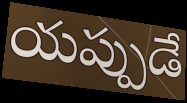
యప్పుడే